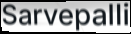
Sarvepalli